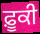
ਫ਼ੂਕੀ